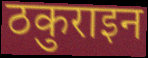
ठकुराइन